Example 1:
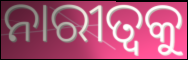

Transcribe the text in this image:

ନାରୀତ୍ୱକୁ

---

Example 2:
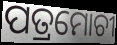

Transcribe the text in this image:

ପତ୍ରମୋଚୀ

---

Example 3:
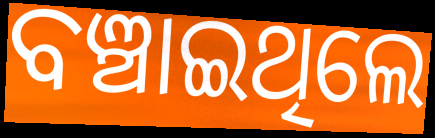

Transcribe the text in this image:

ବଞ୍ଚାଇଥିଲେ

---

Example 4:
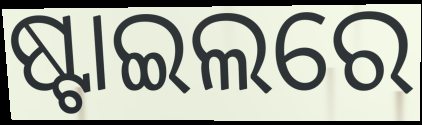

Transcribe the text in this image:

ଷ୍ଟାଇଲରେ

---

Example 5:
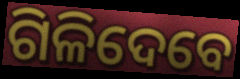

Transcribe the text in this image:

ଗିଳିଦେବେ